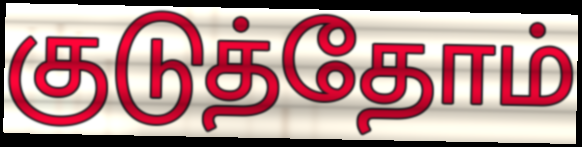
குடுத்தோம்